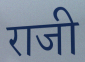
राजी